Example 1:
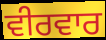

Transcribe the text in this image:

ਵੀਰਵਾਰ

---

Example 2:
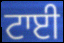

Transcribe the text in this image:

ਟਾਈ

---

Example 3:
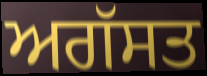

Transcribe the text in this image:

ਅਗੱਸਤ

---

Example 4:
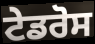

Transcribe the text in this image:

ਟੇਡਰੋਸ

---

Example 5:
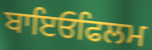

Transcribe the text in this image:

ਬਾਇਓਫਿਲਮ